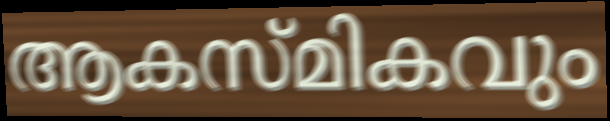
ആകസ്മികവും